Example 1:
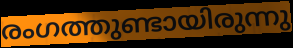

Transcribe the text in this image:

രംഗത്തുണ്ടായിരുന്നു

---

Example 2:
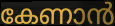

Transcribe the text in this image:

കേണാൻ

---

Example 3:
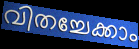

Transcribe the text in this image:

വിതച്ചേക്കാം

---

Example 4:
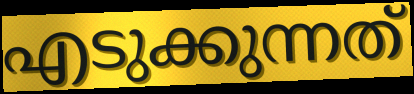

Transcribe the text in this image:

എടുക്കുന്നത്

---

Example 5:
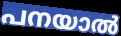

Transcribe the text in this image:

പനയാൽ